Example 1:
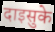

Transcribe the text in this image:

दाइसुके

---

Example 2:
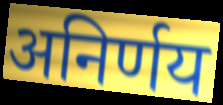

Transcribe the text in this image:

अनिर्णय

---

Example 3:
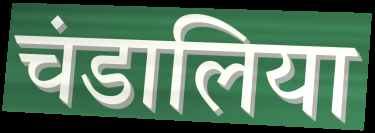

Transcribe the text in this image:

चंडालिया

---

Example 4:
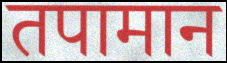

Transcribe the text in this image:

तपामान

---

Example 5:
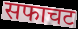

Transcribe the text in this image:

सफाचट